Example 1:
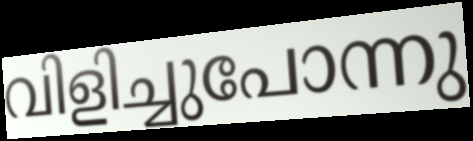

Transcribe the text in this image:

വിളിച്ചുപോന്നു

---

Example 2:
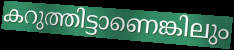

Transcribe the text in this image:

കറുത്തിട്ടാണെങ്കിലും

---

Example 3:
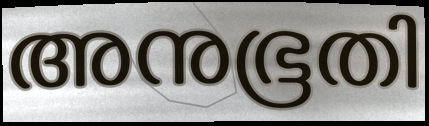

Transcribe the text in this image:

അനുഭൂതി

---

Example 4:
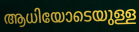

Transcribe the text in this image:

ആധിയോടെയുള്ള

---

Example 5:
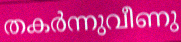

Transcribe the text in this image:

തകർന്നുവീണു